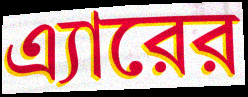
এ্যারের